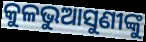
କୁଳଭୁଆସୁଣୀଙ୍କୁ